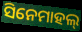
ସିନେମାହଲ୍